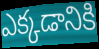
ఎక్కడానికి